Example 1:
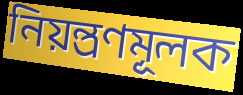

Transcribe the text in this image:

নিয়ন্ত্রণমূলক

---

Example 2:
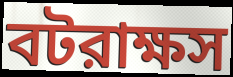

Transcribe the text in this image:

বটরাক্ষস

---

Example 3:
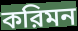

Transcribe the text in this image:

করিমন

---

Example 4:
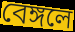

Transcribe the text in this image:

বেঙ্গলে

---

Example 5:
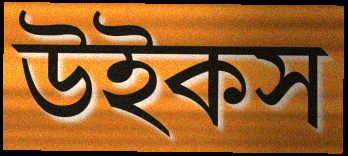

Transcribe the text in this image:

উইকস